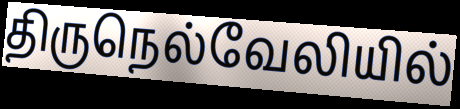
திருநெல்வேலியில்